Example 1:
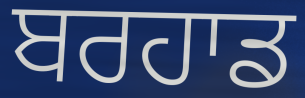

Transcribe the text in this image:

ਬਰਹਾਡ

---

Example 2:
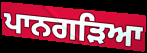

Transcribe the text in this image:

ਪਾਨਗੜਿਆ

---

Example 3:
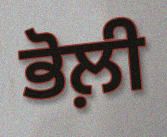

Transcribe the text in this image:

ਭੋਲ਼ੀ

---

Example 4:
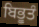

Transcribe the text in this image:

ਬਿਭੂਤੰ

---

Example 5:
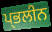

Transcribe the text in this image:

ਪ੍ਭਲੀਨ